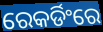
ରେକର୍ଡିଂରେ